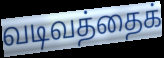
வடிவத்தைக்